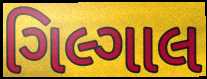
ગિલ્ગાલ